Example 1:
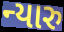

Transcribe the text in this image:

ન્યારુ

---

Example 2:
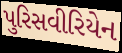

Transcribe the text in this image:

પુરિસવીરિયેન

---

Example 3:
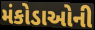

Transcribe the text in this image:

મંકોડાઓની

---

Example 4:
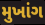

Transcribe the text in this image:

મુખાંગ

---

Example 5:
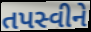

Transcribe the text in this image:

તપસ્વીને